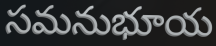
సమనుభూయ